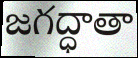
జగద్ధాతా